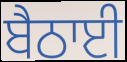
ਬੈਠਾਈ